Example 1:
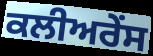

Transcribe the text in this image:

ਕਲੀਅਰੇਂਸ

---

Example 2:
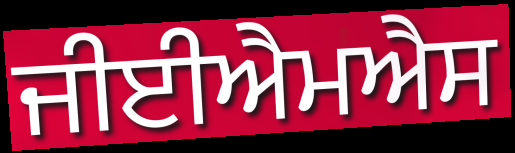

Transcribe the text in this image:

ਜੀਈਐਮਐਸ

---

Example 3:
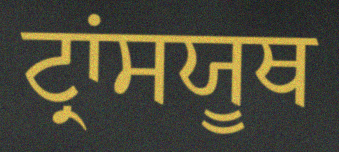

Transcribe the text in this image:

ਟ੍ਰਾਂਸਯੂਥ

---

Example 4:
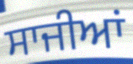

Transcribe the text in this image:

ਸਾਜੀਆਂ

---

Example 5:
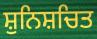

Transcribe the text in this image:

ਸ਼ੁਨਿਸ਼ਚਿਤ